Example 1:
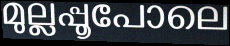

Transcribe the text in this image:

മുല്ലപ്പൂപോലെ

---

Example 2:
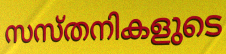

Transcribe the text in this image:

സസ്തനികളുടെ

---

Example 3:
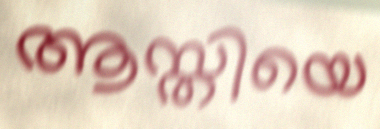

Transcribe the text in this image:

ആസ്തിയെ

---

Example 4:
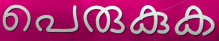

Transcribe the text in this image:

പെരുകുക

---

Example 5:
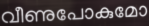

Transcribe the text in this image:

വീണുപോകുമോ